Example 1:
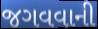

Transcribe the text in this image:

જગવવાની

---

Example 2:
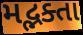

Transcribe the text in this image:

મદ્ભક્તા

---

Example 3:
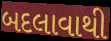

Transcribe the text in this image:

બદલાવાથી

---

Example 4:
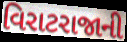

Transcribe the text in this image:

વિરાટરાજાની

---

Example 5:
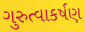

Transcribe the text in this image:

ગુરુત્વાકર્ષણ